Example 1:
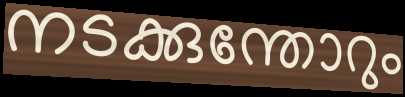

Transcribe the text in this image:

നടക്കുന്തോറും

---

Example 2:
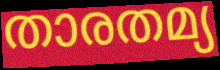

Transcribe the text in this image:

താരതമ്യ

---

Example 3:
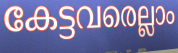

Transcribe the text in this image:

കേട്ടവരെല്ലാം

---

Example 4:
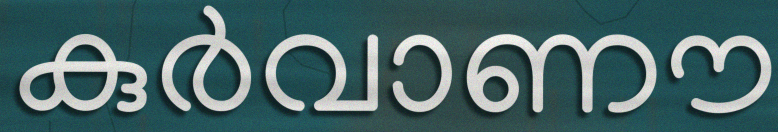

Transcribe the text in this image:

കുർവാണൗ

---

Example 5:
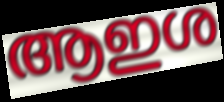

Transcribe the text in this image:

ആഇശ